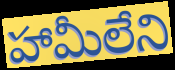
హామీలేని